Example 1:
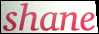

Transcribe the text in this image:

shane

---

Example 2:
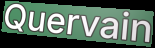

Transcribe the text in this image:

Quervain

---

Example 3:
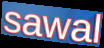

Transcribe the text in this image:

sawal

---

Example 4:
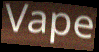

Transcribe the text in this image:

Vape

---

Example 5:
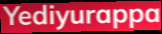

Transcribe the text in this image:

Yediyurappa